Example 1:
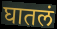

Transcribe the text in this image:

घातलं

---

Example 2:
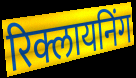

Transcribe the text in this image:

रिक्लायनिंग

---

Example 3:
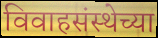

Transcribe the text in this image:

विवाहसंस्थेच्या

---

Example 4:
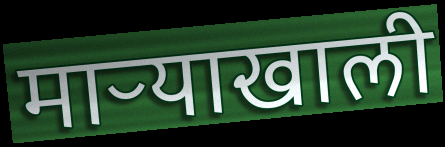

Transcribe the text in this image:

माऱ्याखाली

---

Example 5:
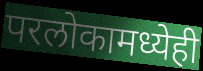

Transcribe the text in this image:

परलोकामध्येही